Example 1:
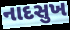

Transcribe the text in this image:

નાદસુખ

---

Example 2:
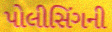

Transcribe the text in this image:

પોલીસિંગની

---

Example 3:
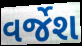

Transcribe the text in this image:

વર્જેશ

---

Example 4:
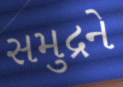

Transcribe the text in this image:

સમુદ્રને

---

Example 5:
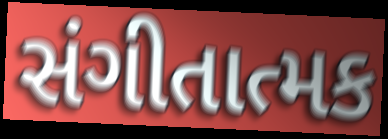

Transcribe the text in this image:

સંગીતાત્મક